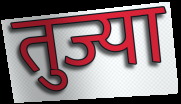
तुज्या